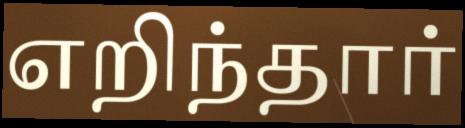
எறிந்தார்